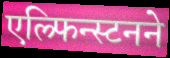
एल्फिन्स्टनने